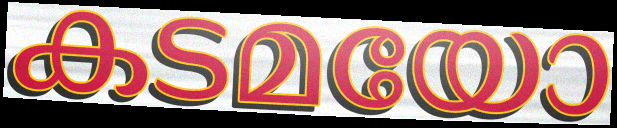
കടമയോ